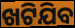
ଖଟିଯିବ